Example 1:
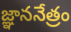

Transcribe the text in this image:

జ్ఞాననేత్రం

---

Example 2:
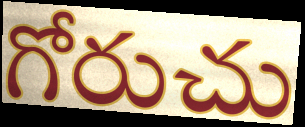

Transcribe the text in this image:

గోరుచు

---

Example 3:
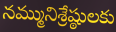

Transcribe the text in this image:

నమ్మునిశ్రేష్ఠులకు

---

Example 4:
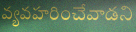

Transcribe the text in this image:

వ్యవహరించేవాడని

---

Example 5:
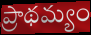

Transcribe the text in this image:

ప్రాథమ్యం